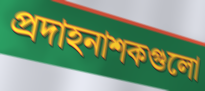
প্রদাহনাশকগুলো